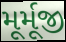
મૂર્મૂજી